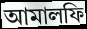
আমালফি